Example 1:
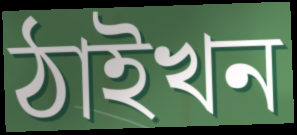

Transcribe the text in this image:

ঠাইখন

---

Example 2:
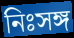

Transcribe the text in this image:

নিঃসঙ্গ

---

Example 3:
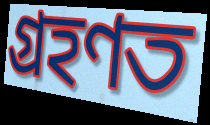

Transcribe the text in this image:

গ্ৰহণত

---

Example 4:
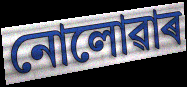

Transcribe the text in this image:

নোলোৱাৰ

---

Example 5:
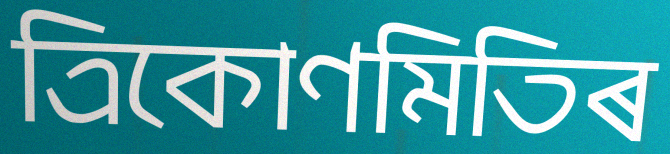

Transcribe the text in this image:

ত্ৰিকোণমিতিৰ